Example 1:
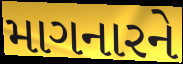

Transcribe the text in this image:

માગનારને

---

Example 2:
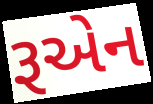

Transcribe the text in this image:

રૂએન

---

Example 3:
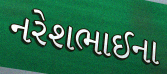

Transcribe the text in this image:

નરેશભાઈના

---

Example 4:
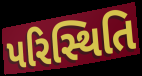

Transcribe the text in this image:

પરિસ્થિતિ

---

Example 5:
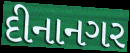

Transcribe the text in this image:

દીનાનગર